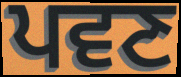
ਪਵਣ